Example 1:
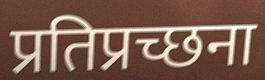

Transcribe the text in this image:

प्रतिप्रच्छना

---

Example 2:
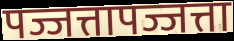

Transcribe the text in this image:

पज्जत्तापज्जत्ता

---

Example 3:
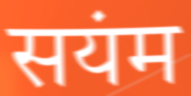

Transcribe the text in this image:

सयंम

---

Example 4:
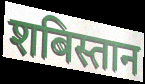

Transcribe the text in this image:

शबिस्तान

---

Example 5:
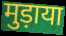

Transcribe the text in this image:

मुड़ाया